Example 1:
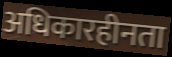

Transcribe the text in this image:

अधिकारहीनता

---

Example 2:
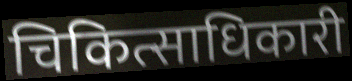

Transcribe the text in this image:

चिकित्साधिकारी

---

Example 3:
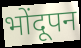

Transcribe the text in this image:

भोंदूपन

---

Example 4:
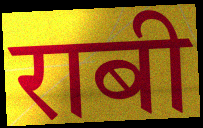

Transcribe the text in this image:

राबी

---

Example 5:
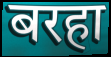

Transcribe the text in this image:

बरहा